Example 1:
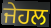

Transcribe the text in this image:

ਜੇਹਲ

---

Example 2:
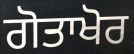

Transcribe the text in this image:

ਗੋਤਾਖੋਰ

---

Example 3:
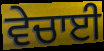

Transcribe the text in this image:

ਵੇਚਾਈ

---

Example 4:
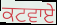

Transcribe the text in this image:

ਕਟਵਾਏ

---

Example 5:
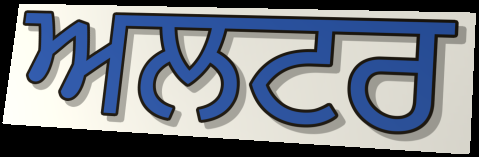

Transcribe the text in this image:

ਅਲਟਰ